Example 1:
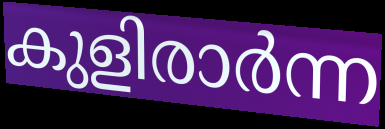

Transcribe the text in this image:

കുളിരാർന്ന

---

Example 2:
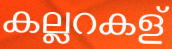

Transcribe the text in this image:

കല്ലറകള്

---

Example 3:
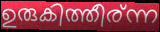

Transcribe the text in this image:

ഉരുകിത്തീര്ന്ന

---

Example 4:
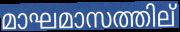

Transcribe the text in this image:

മാഘമാസത്തില്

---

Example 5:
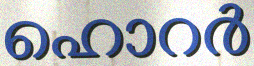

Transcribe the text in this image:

ഹൊറർ